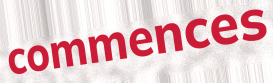
commences